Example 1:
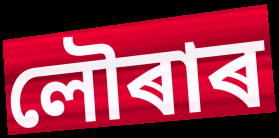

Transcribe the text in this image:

লৌৰাৰ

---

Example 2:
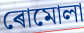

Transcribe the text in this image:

ৰোমোলা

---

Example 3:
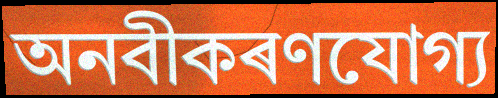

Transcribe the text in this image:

অনবীকৰণযোগ্য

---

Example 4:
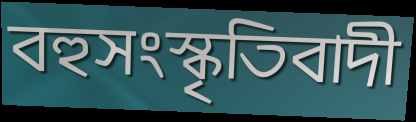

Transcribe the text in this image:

বহুসংস্কৃতিবাদী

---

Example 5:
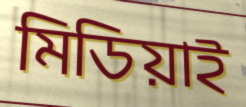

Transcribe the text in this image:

মিডিয়াই